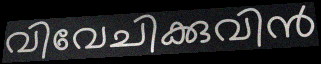
വിവേചിക്കുവിൻ